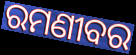
ରମଣୀବର